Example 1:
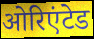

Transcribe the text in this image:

ओरिएंटेड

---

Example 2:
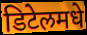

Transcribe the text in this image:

डिटेलमधे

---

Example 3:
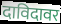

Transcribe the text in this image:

दाविदावर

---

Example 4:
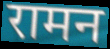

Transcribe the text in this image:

रामन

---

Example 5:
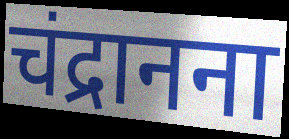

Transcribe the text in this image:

चंद्रानना